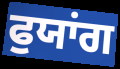
ਫੁਯਾਂਗ